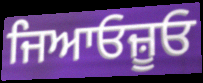
ਜਿਆਓਜ਼ੂਓ